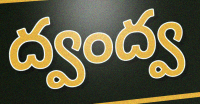
ద్వంద్వ